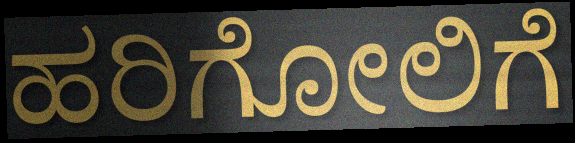
ಹರಿಗೋಲಿಗೆ